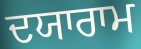
ਦਯਾਰਾਮ